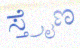
ಸ್ತ್ರೈಣ